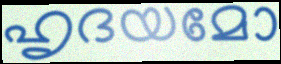
ഹൃദയമോ